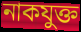
নাকযুক্ত